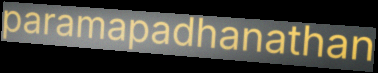
paramapadhanathan